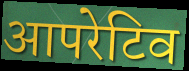
आपरेटिव